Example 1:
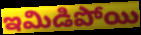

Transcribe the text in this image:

ఇమిడిపోయి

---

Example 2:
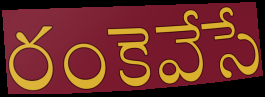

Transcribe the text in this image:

రంకెవేసే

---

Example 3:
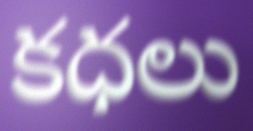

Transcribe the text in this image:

కధలు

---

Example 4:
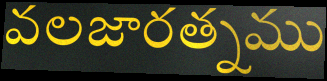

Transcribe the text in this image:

వలజారత్నము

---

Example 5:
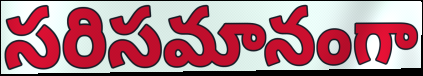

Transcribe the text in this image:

సరిసమానంగా